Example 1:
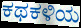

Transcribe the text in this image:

ಕಥಕಳಿಯ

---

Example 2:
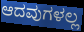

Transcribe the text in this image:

ಆದವುಗಳಲ್ಲ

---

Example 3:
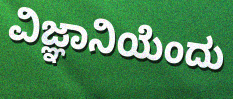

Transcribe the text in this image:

ವಿಜ್ಞಾನಿಯೆಂದು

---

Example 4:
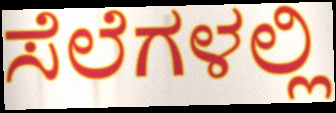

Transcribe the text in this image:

ಸೆಲೆಗಳಲ್ಲಿ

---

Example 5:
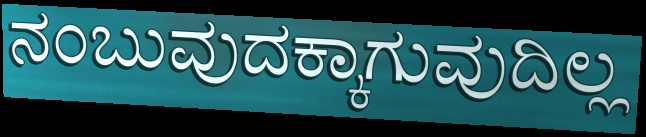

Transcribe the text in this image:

ನಂಬುವುದಕ್ಕಾಗುವುದಿಲ್ಲ